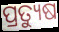
ପ୍ରତ୍ୟୁଷ